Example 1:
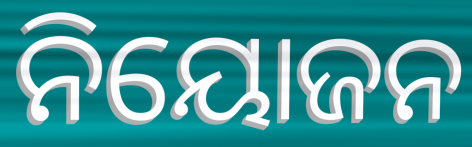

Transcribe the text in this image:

ନିୟୋଜନ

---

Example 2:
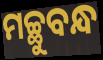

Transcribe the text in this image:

ମଚ୍ଛୁବନ୍ଧ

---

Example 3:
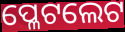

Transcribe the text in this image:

ପ୍ଳେଟଲେଟ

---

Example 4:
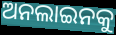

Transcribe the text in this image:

ଅନଲାଇନକୁ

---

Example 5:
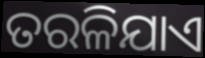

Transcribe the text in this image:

ତରଳିଯାଏ